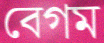
বেগম